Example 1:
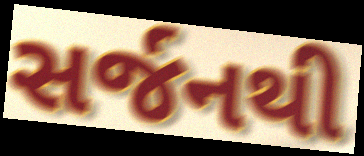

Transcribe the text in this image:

સર્જનથી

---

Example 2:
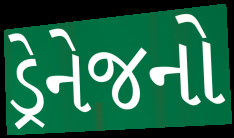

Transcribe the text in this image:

ડ્રેનેજનો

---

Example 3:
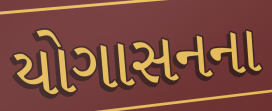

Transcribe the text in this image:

યોગાસનના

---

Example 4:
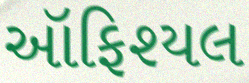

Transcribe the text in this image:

ઑફિશ્યલ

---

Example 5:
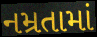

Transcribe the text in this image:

નમ્રતામાં